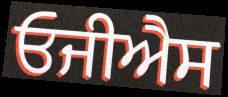
ਓਜੀਐਸ